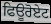
ਫਿਊਰੋਏਟ